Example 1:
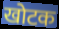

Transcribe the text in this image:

खोटक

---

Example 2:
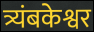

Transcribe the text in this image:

त्र्यंबकेश्वर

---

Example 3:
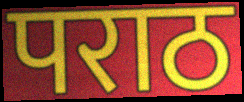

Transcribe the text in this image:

पराठ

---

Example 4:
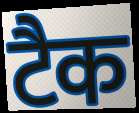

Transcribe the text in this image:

टैक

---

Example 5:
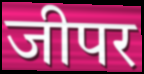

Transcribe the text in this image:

जीपर